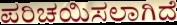
ಪರಿಚಯಿಸಲಾಗಿದೆ